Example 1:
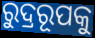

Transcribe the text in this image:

ରୁଦ୍ରରୂପକୁ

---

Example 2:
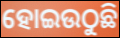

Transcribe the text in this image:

ହୋଇଉଠୁଛି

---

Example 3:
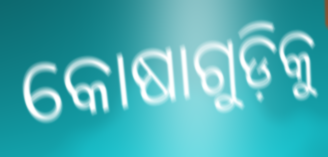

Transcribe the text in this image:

କୋଷାଗୁଡ଼ିକୁ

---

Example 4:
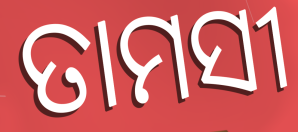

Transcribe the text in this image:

ତାମସୀ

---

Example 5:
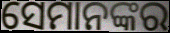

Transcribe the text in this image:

ସେମାନଙ୍କର